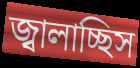
জ্বালাচ্ছিস